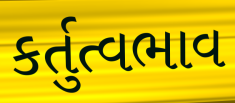
કર્તુત્વભાવ